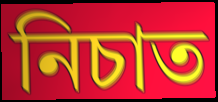
নিচাত